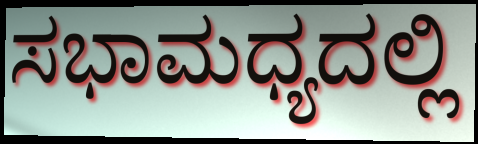
ಸಭಾಮಧ್ಯದಲ್ಲಿ